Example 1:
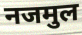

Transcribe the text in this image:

नजमुल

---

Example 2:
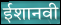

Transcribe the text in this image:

ईशानवी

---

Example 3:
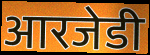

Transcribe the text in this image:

आरजेडी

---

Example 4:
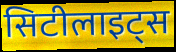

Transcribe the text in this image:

सिटीलाइट्स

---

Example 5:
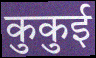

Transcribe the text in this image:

कुकुई